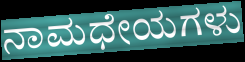
ನಾಮಧೇಯಗಳು